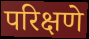
परिक्षणे